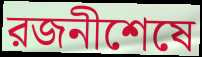
রজনীশেষে